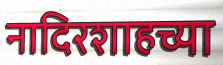
नादिरशाहच्या